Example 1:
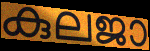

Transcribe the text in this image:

കുലജാ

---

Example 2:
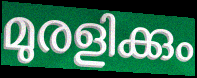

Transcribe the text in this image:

മുരളിക്കും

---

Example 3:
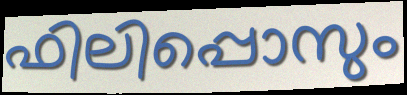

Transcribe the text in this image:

ഫിലിപ്പൊസും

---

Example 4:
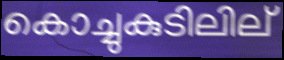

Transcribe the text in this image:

കൊച്ചുകുടിലില്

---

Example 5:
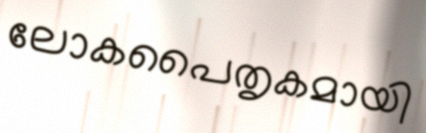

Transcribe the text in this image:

ലോകപൈതൃകമായി